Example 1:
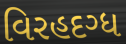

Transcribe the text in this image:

વિરહદગ્ધ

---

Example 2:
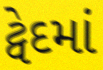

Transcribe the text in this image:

ટ્વેદમાં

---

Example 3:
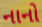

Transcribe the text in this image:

નાનો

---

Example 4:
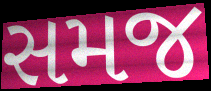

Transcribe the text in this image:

સમજ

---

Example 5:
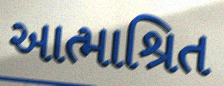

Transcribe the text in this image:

આત્માશ્રિત